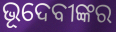
ଭୂଦେବୀଙ୍କର